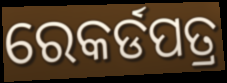
ରେକର୍ଡପତ୍ର